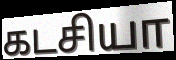
கடசியா